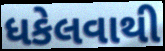
ધકેલવાથી